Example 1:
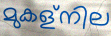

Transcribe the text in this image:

മുകള്നില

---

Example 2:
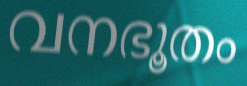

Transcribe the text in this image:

വനഭൂതം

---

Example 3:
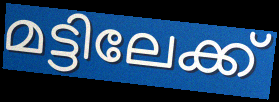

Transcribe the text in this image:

മട്ടിലേക്ക്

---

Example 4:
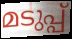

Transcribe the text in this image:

മടുപ്പ്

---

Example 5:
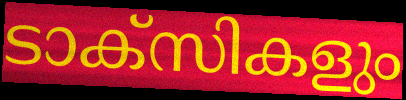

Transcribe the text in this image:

ടാക്സികളും